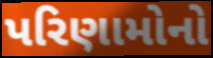
પરિણામોનો